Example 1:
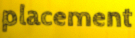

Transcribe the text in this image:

placement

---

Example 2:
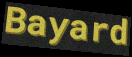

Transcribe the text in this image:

Bayard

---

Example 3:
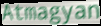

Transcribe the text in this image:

Atmagyan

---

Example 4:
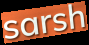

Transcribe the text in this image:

sarsh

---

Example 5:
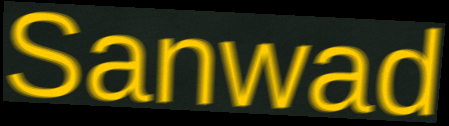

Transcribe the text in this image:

Sanwad